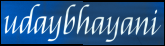
udaybhayani